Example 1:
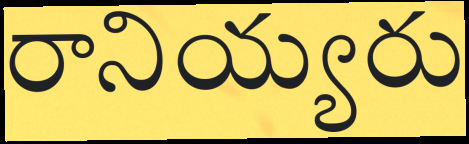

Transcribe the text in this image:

రానియ్యరు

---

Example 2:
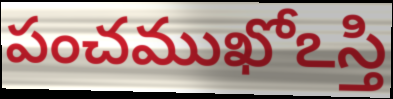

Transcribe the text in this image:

పంచముఖోఽస్తి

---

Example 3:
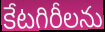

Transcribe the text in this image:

కేటగిరీలను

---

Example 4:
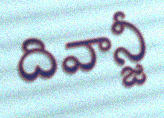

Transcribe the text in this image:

దివాన్జీ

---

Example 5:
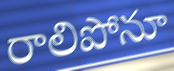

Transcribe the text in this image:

రాలిపోనూ